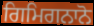
ਗਿਮਿਗਨਾਨੋ